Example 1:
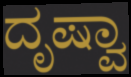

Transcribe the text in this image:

ದೃಷ್ವಾ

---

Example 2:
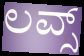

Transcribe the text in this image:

ಲವ್ಸ್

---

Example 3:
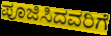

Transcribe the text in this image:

ಪೂಜಿಸಿದವರಿಗೆ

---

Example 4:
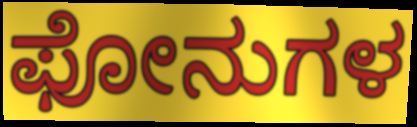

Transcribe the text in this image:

ಫೋನುಗಳ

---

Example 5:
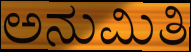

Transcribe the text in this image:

ಅನುಮಿತಿ